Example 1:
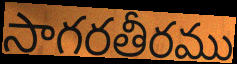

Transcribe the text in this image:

సాగరతీరము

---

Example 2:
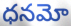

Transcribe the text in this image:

ధనమో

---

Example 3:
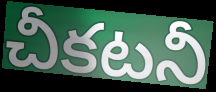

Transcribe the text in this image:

చీకటనీ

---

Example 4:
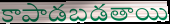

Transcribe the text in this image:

కాపాడబడతాయి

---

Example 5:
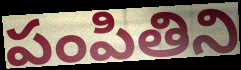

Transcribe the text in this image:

పంపితిని